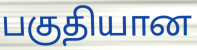
பகுதியான